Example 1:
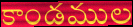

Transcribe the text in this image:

కాండముల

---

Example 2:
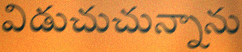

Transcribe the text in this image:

విడుచుచున్నాను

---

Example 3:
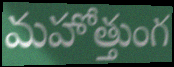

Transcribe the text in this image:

మహోత్తుంగ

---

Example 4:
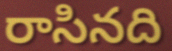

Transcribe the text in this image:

రాసినది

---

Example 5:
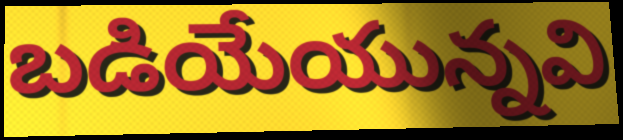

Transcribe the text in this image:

బడియేయున్నవి